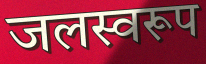
जलस्वरूप